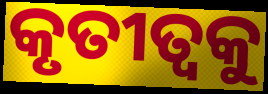
କୃତୀତ୍ଵକୁ